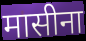
मासीना